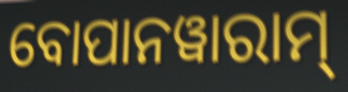
ବୋପାନୱାରାମ୍